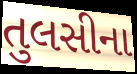
તુલસીના